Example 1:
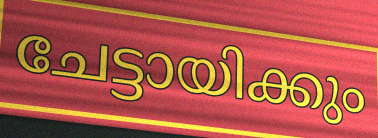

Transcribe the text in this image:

ചേട്ടായിക്കും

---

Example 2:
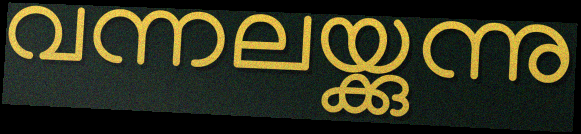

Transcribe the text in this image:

വന്നലയ്ക്കുന്നു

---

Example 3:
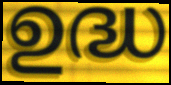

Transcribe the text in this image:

ഉദ്ധ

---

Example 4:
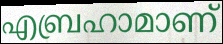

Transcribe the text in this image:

എബ്രഹാമാണ്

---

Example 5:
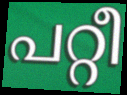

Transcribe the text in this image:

പറ്റീ